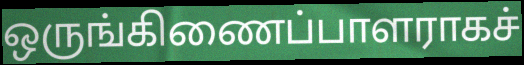
ஒருங்கிணைப்பாளராகச்